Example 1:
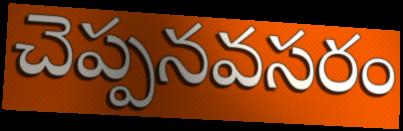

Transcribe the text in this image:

చెప్పనవసరం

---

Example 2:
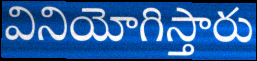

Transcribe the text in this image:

వినియోగిస్తారు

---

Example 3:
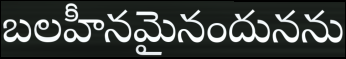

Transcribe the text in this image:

బలహీనమైనందునను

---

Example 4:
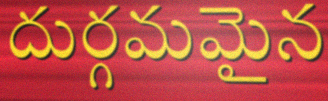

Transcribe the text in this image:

దుర్గమమైన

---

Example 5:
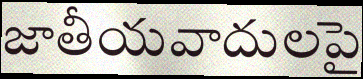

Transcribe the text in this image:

జాతీయవాదులపై